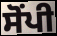
ਸੋੰਪੀ